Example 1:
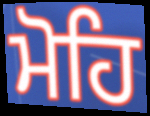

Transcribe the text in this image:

ਮੋਹਿ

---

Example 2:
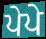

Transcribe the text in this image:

ਪੇਪੇ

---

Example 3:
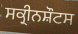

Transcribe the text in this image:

ਸਕ੍ਰੀਨਸ਼ੌਟਸ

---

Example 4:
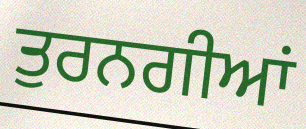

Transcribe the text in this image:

ਤੁਰਨਗੀਆਂ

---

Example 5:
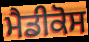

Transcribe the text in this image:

ਮੈਡੀਕੋਸ